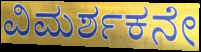
ವಿಮರ್ಶಕನೇ